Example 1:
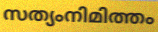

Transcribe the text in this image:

സത്യംനിമിത്തം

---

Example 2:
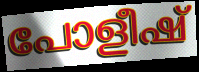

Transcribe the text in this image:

പോളീഷ്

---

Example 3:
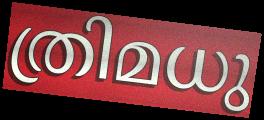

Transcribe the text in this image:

ത്രിമധു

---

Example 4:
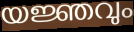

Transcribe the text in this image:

യജ്ഞവും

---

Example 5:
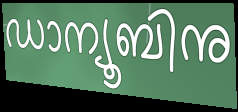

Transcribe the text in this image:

ഡാന്യൂബിനു